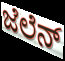
ಜೆಲೆನ್